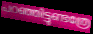
പറഞ്ഞിട്ടുണ്ടത്രേ